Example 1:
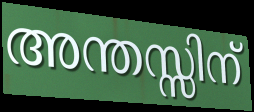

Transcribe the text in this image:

അന്തസ്സിന്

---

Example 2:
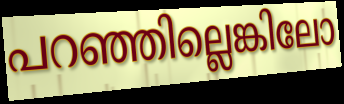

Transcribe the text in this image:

പറഞ്ഞില്ലെങ്കിലോ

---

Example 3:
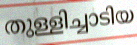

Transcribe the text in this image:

തുള്ളിച്ചാടിയ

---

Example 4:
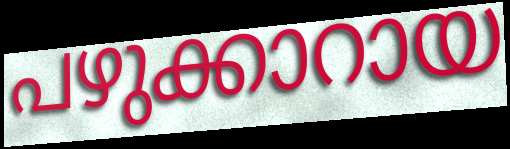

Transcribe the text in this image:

പഴുക്കാറായ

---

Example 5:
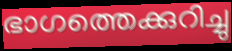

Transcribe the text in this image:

ഭാഗത്തെക്കുറിച്ചു